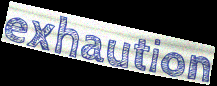
exhaution